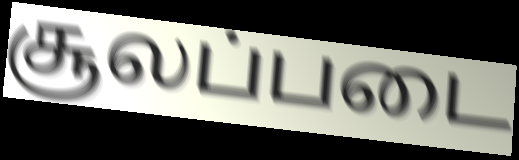
சூலப்படை